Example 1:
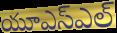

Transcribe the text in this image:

యూఎస్ఎల్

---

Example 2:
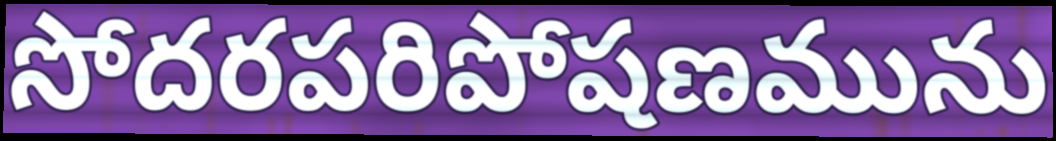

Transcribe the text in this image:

సోదరపరిపోషణమును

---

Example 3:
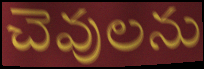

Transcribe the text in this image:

చెవులను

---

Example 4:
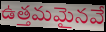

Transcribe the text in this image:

ఉత్తమమైనవే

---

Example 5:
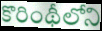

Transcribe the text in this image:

కొరింథీలోని